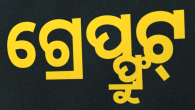
ଗ୍ରେପ୍ଫ୍ରୁଟ୍